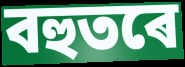
বহুতৰে